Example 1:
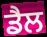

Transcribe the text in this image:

ਡੈਲ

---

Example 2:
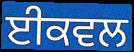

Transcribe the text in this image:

ਈਕਵਲ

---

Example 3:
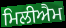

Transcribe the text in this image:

ਮਿਲੀਐਮ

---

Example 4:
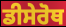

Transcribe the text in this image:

ਡੀਸੇਰੋਥ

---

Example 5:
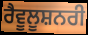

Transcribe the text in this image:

ਰੈਵੂਲੂਸ਼ਨਰੀ